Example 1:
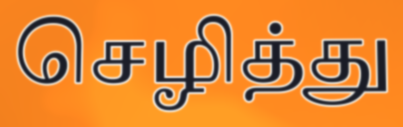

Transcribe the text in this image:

செழித்து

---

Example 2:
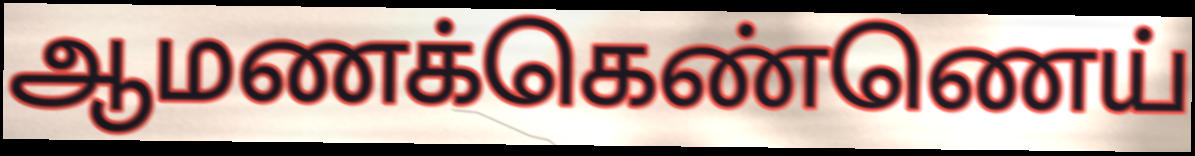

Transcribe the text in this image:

ஆமணக்கெண்ணெய்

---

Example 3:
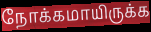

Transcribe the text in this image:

நோக்கமாயிருக்க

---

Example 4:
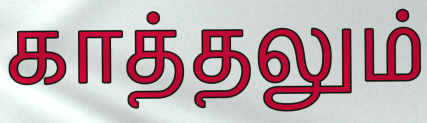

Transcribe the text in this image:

காத்தலும்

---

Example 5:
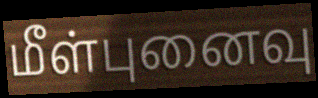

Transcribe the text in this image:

மீள்புனைவு